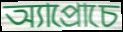
অ্যাপ্রোচে